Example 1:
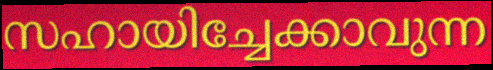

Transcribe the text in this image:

സഹായിച്ചേക്കാവുന്ന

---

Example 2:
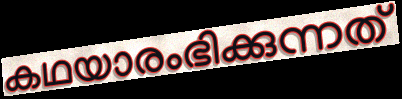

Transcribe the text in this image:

കഥയാരംഭിക്കുന്നത്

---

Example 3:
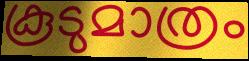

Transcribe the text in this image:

കൂടുമാത്രം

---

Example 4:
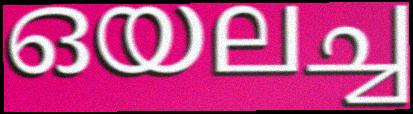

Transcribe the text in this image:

ഒയലച്ച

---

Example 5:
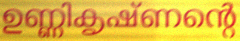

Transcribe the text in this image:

ഉണ്ണികൃഷ്‌ണന്റെ